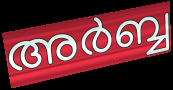
അർബ്ബ